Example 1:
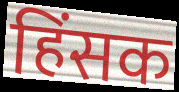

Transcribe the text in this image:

हिंसक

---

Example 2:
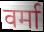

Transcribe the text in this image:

वर्मा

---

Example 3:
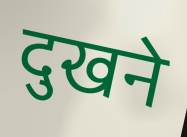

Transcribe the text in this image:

दुखने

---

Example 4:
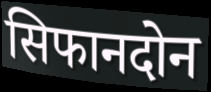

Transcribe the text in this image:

सिफानदोन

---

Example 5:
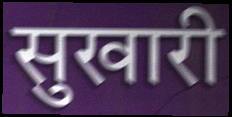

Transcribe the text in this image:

सुखारी